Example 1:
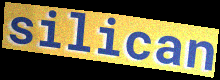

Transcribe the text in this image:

silican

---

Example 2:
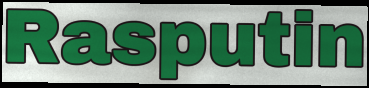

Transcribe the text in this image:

Rasputin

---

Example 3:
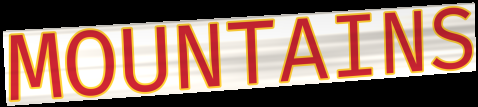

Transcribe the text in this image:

MOUNTAINS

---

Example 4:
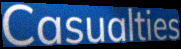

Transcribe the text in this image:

Casualties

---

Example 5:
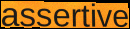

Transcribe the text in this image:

assertive